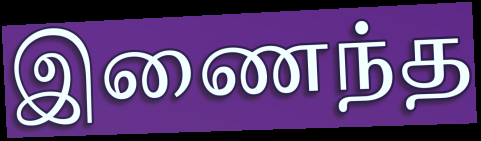
இணைந்த